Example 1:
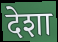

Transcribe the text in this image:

देशा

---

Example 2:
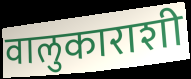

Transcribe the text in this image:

वालुकाराशी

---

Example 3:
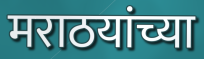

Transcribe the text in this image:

मराठयांच्या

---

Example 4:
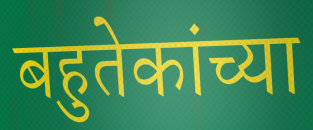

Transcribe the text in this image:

बहुतेकांच्या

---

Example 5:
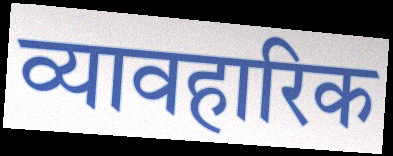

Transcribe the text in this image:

व्यावहारिक